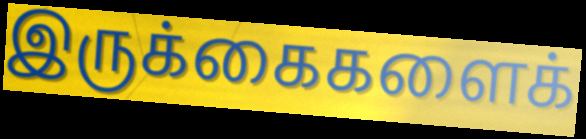
இருக்கைகளைக்